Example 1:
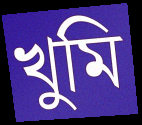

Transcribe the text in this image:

খুমি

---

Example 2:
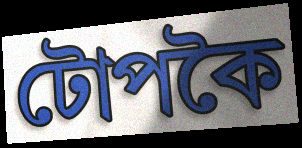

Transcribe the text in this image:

টোপকৈ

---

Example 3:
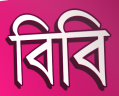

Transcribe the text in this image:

বিবি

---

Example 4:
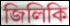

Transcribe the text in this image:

জিলিকি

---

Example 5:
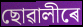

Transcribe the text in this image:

ছোৱালীৰে